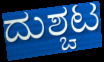
ದುಶ್ಚಟ